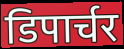
डिपार्चर